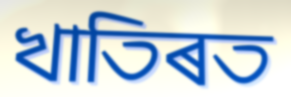
খাতিৰত